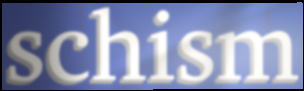
schism